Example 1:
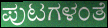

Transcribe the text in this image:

ಪುಟಗಳಂತೆ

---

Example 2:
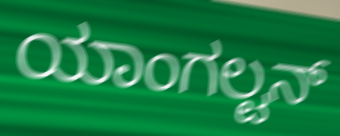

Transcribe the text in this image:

ಯಾಂಗಲ್ಟನ್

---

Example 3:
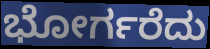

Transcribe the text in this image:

ಭೋರ್ಗರೆದು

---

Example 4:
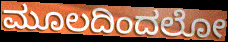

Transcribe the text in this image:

ಮೂಲದಿಂದಲೋ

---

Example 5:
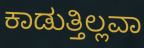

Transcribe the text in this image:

ಕಾಡುತ್ತಿಲ್ಲವಾ